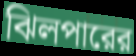
ঝিলপারের